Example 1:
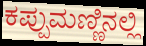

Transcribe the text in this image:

ಕಪ್ಪುಮಣ್ಣಿನಲ್ಲಿ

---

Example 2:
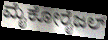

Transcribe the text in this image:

ಮೈಕೋರೈಜಲ್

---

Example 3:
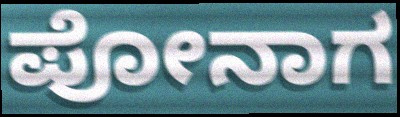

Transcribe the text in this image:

ಪೋನಾಗ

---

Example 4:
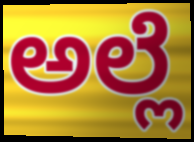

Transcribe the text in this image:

ಅಲ್ಲೆ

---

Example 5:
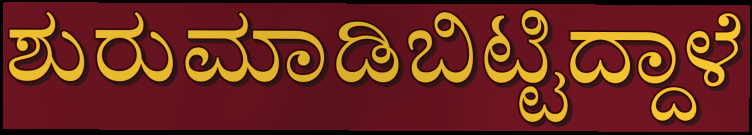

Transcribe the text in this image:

ಶುರುಮಾಡಿಬಿಟ್ಟಿದ್ದಾಳೆ